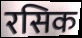
रसिक